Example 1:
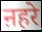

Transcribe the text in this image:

ऩहरे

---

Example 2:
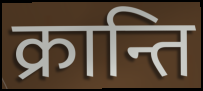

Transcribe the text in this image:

क्रान्ति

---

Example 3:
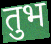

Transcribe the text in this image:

तुभ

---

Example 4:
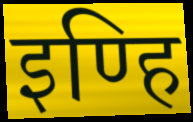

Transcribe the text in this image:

इण्हि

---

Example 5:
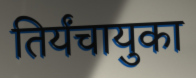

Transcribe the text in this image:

तिर्यंचायुका